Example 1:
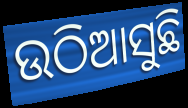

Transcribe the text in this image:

ଉଠିଆସୁଛି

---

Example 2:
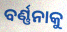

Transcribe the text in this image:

ବର୍ଣ୍ଣନାକୁ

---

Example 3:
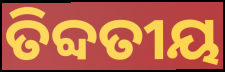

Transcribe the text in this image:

ତିବ୍ଦତୀୟ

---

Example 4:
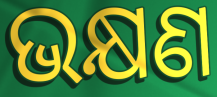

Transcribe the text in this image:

ଭକ୍ଷଣ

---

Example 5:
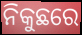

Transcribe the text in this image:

ନିକୁଛରେ